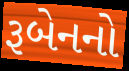
રૂબેનનો